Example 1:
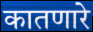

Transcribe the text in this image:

कातणारे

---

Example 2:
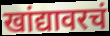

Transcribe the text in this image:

खांद्यावरचं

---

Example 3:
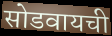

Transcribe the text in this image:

सोडवायची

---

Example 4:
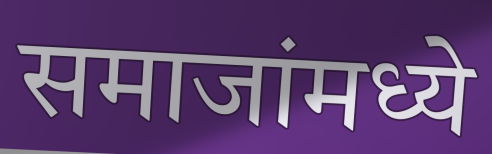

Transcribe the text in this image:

समाजांमध्ये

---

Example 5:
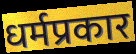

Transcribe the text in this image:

धर्मप्रकार